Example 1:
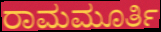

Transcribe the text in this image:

ರಾಮಮೂರ್ತಿ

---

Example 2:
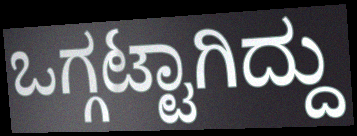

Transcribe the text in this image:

ಒಗ್ಗಟ್ಟಾಗಿದ್ದು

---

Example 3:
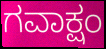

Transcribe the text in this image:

ಗವಾಕ್ಷಂ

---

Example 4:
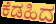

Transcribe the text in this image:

ಕೆಡಹಿದ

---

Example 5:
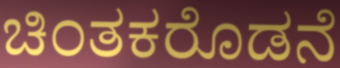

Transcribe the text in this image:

ಚಿಂತಕರೊಡನೆ